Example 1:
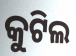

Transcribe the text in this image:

କୁଟିଲ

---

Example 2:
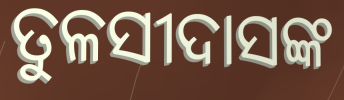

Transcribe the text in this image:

ତୁଳସୀଦାସଙ୍କ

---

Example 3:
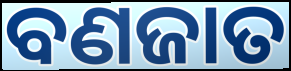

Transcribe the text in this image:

ବଣଜାତ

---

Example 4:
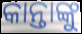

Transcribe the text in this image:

କାନ୍ତାଙ୍କୁ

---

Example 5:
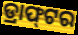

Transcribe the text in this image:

ଡ୍ରାଫ୍‌ଟର